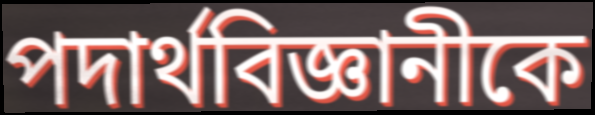
পদার্থবিজ্ঞানীকে